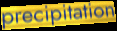
precipitation